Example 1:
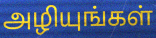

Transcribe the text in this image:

அழியுங்கள்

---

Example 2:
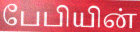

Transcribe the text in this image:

பேபியின்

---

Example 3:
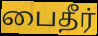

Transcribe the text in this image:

பைதீர்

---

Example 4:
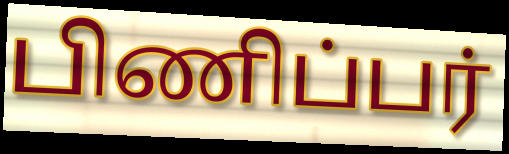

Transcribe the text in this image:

பிணிப்பர்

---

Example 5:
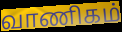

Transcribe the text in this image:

வாணிகம்